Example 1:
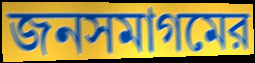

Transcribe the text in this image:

জনসমাগমের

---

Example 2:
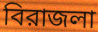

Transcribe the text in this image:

বিরাজলা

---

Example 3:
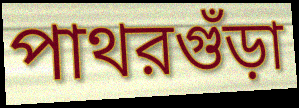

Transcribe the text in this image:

পাথরগুঁড়া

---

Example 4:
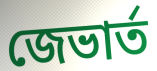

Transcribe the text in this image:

জেভার্ত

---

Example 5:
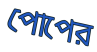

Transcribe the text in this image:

পোপের